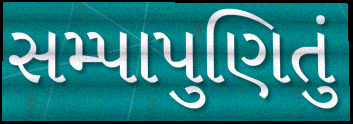
સમ્પાપુણિતું